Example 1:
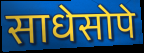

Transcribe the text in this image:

साधेसोपे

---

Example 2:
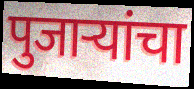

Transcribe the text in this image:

पुजाऱ्यांचा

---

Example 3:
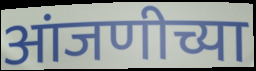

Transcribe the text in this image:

आंजणीच्या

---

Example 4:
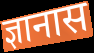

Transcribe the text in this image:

ज्ञानास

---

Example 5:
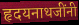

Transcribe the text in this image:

हृदयनाथजींनी